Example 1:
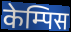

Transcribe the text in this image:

केम्पिस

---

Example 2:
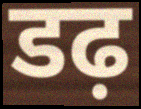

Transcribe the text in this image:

डढ़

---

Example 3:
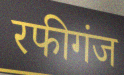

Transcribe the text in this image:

रफीगंज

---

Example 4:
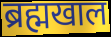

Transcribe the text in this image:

ब्रह्मखाल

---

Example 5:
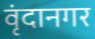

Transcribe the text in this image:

वृंदानगर